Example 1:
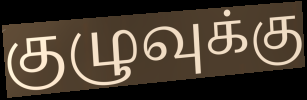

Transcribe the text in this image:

குழுவுக்கு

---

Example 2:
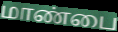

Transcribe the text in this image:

மாண்பை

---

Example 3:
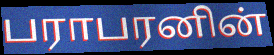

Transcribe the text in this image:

பராபரனின்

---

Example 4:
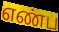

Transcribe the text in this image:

எண்ப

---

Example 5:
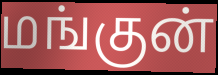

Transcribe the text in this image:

மங்குன்